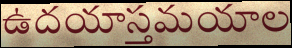
ఉదయాస్తమయాల